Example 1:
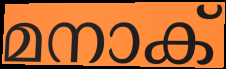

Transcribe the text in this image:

മനാക്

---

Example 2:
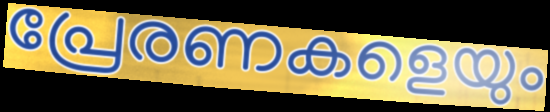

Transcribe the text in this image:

പ്രേരണകളെയും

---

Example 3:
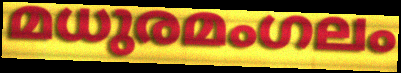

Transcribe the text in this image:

മധുരമംഗലം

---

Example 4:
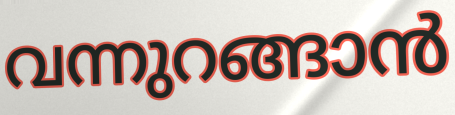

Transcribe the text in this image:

വന്നുറങ്ങാൻ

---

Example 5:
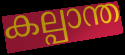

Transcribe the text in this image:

കല്പാന്ത